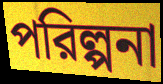
পরিল্পনা